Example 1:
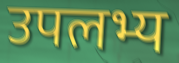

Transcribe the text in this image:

उपलभ्य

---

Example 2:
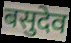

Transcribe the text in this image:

बसुदेव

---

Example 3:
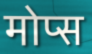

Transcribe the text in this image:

मोप्स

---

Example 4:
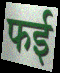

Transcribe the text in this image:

फई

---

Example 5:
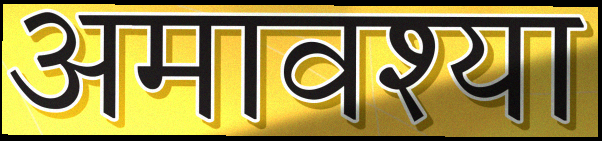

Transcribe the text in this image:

अमावश्या